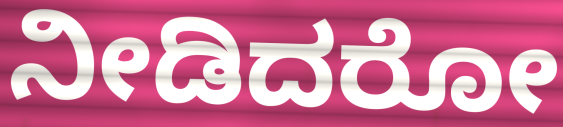
ನೀಡಿದರೋ